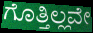
ಗೊತ್ತಿಲ್ಲವೇ